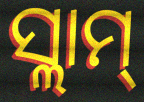
ସ୍ଲାମ୍